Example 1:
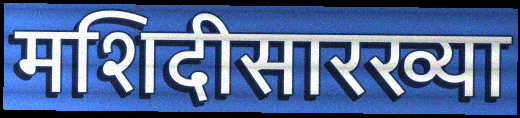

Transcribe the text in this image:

मशिदीसारख्या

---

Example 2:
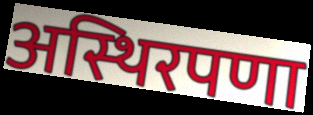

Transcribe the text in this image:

अस्थिरपणा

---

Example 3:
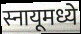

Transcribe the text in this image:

स्नायूमध्ये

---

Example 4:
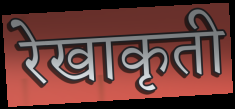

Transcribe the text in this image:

रेखाकृती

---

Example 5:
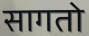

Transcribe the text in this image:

सागतो